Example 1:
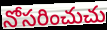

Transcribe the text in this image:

నోసరించుచు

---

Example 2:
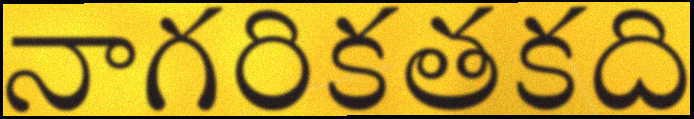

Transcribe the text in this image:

నాగరికతకది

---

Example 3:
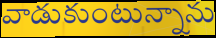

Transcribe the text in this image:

వాడుకుంటున్నాను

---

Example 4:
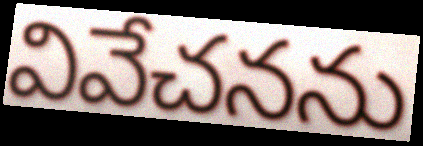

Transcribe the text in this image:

వివేచనను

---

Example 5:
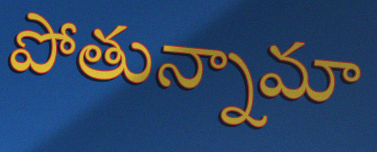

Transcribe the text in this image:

పోతున్నామా